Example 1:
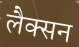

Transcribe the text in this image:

लैक्सन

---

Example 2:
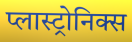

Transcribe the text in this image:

प्लास्ट्रोनिक्स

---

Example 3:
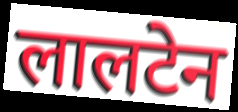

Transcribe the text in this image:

लालटेन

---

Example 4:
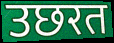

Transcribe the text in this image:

उछरत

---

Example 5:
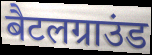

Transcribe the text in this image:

बैटलग्राउंड